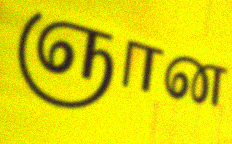
ஞான